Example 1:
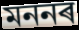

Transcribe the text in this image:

মননৰ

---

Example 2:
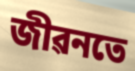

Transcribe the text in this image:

জীৱনতে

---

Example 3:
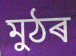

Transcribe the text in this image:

মুঠৰ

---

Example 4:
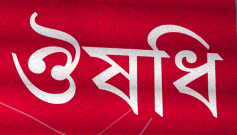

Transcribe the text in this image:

ঔষধি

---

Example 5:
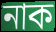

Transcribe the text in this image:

নাক